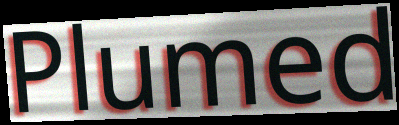
Plumed